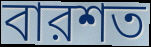
বারশত